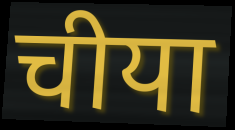
चीया